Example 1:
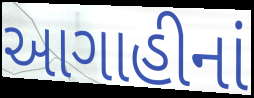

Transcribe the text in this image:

આગાહીનાં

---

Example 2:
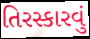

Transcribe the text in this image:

તિરસ્કારવું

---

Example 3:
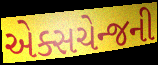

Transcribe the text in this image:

એક્સચેન્જની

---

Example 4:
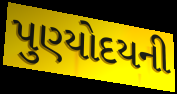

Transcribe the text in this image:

પુણ્યોદયની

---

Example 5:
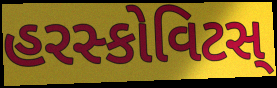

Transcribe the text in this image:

હરસ્કોવિટસ્